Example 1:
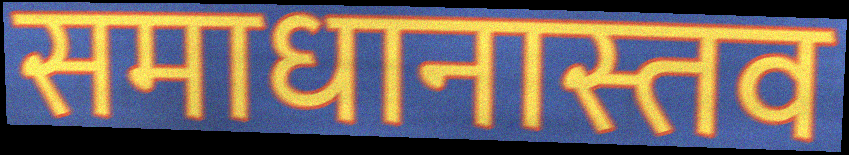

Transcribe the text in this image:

समाधानास्तव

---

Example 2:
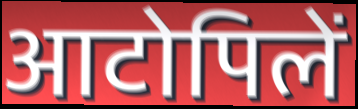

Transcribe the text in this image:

आटोपिलें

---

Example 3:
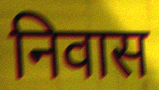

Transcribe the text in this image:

निवास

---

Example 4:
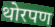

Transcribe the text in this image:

थोरपण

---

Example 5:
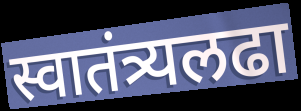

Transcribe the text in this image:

स्वातंत्र्यलढा